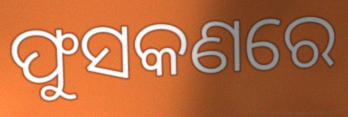
ଫୁସକଣରେ